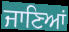
ਜਾਣਿਆਂ